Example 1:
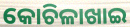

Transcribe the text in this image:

କୋଚିଳାଖାଇ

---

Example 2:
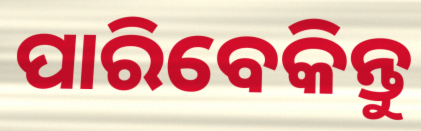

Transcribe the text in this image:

ପାରିବେକିନ୍ତୁ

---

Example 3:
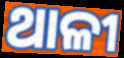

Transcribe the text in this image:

ଥାଳୀ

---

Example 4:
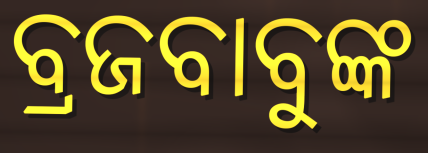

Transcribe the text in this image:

ବ୍ରଜବାବୁଙ୍କ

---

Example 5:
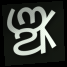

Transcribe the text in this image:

ଞ୍ଝ